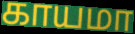
காயமா